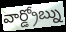
వార్డ్రోబ్ను